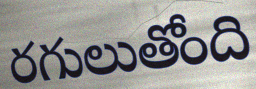
రగులుతోంది